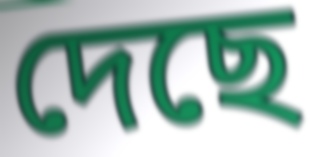
দেছে